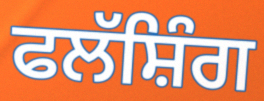
ਫਲੱਸ਼ਿੰਗ